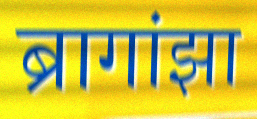
ब्रागांझा